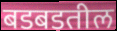
बडबडतील